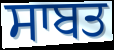
ਸਾਬਤ